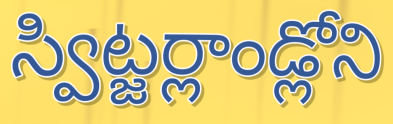
స్విట్జర్లాండ్లోని